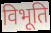
विभूति